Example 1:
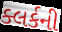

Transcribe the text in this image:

ક્લર્કની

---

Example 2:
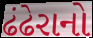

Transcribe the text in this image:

ઢંઢેરાનો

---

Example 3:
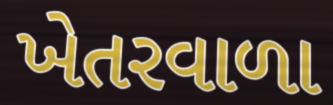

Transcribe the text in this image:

ખેતરવાળા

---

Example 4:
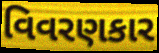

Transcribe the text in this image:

વિવરણકાર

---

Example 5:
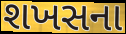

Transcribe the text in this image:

શખસના